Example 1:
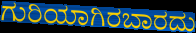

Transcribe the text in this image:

ಗುರಿಯಾಗಿರಬಾರದು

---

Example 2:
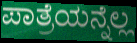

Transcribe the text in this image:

ಪಾತ್ರೆಯನ್ನೆಲ್ಲ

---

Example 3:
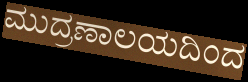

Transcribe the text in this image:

ಮುದ್ರಣಾಲಯದಿಂದ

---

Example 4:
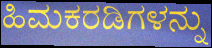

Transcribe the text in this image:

ಹಿಮಕರಡಿಗಳನ್ನು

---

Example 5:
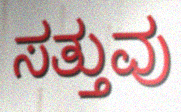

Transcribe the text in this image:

ಸತ್ತುವು